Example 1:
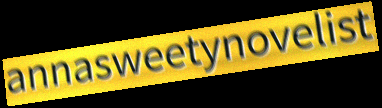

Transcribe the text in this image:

annasweetynovelist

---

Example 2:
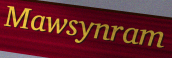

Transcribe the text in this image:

Mawsynram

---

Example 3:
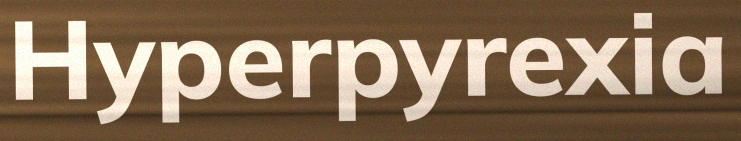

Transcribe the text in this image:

Hyperpyrexia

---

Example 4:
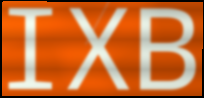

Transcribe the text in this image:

IXB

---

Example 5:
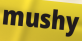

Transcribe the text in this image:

mushy